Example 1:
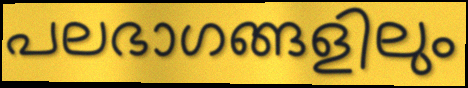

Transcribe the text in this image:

പലഭാഗങ്ങളിലും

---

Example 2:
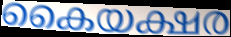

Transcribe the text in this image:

കൈയക്ഷര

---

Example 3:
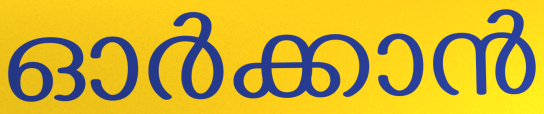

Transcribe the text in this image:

ഓർക്കാൻ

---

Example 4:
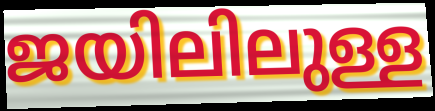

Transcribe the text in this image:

ജയിലിലുള്ള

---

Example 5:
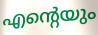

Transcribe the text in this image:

എന്റെയും